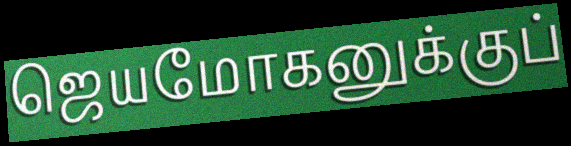
ஜெயமோகனுக்குப்